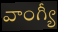
వాంగ్యీ